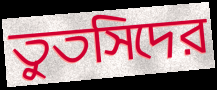
তুতসিদের